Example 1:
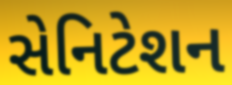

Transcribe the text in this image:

સેનિટેશન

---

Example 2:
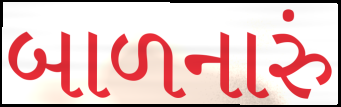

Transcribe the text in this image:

બાળનારું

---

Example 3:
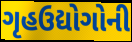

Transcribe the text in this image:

ગૃહઉદ્યોગોની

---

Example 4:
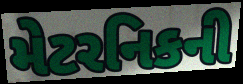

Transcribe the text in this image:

મેટરનિકની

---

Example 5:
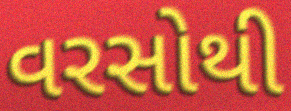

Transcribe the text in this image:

વરસોથી